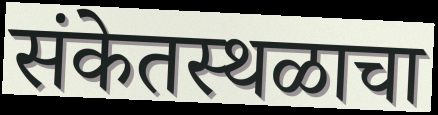
संकेतस्थळाचा